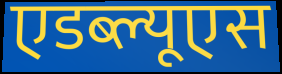
एडब्ल्यूएस